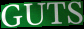
GUTS